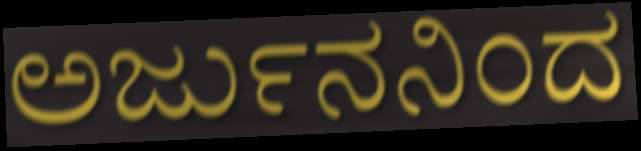
ಅರ್ಜುನನಿಂದ